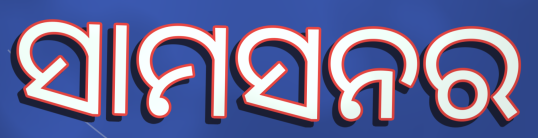
ସାମସନର